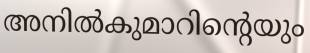
അനിൽകുമാറിന്റെയും